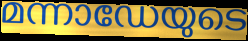
മന്നാഡേയുടെ